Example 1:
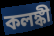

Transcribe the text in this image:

কলঙ্কী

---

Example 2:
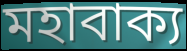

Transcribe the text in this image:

মহাবাক্য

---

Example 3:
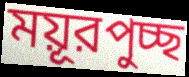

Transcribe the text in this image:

ময়ূরপুচ্ছ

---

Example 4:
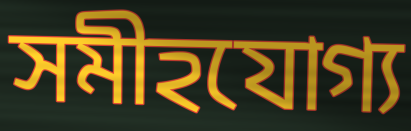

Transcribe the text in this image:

সমীহযোগ্য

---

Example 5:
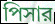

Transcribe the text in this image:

পিসার